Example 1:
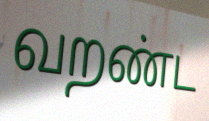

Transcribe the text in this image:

வறண்ட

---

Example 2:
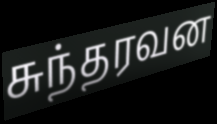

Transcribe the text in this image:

சுந்தரவன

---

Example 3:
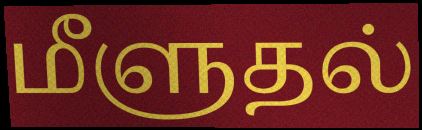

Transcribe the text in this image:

மீளுதல்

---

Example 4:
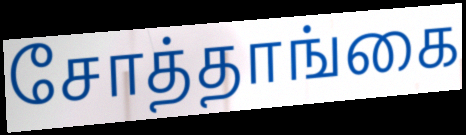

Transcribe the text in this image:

சோத்தாங்கை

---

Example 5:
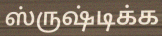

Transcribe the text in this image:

ஸ்ருஷ்டிக்க